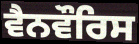
ਵੈਨਵੌਰਿਸ